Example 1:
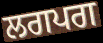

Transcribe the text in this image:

ਲਗਪਗ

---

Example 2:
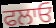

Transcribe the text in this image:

ਫਲਾਓ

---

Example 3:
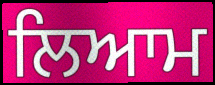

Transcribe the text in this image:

ਲਿਆਮ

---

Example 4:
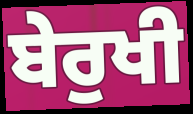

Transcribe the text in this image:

ਬੇਰੁਖੀ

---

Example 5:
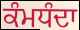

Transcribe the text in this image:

ਕੰਮਧੰਦਾ